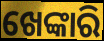
ଖେଙ୍କାରି